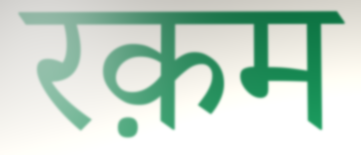
रक़म